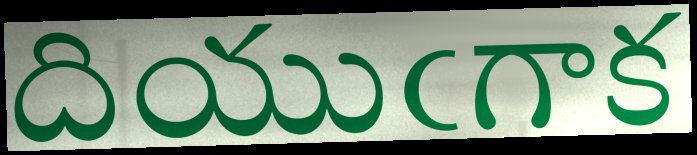
దియుఁగాక